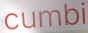
cumbi